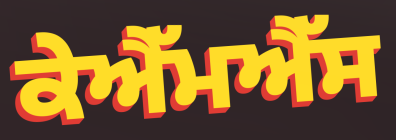
ਕੇਐੱਮਐੱਸ